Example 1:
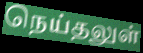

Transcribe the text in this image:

நெய்தலுள்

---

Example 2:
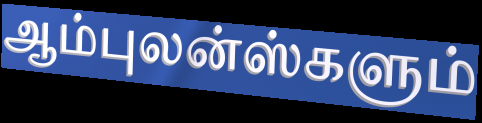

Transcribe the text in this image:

ஆம்புலன்ஸ்களும்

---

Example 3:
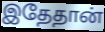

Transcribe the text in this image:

இதேதான்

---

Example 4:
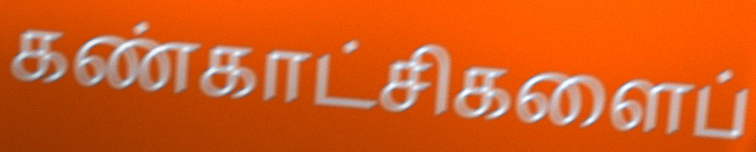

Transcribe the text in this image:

கண்காட்சிகளைப்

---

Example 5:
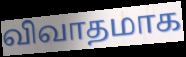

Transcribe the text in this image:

விவாதமாக